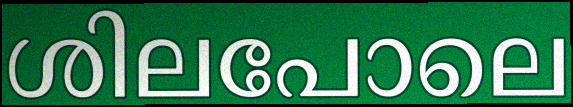
ശിലപോലെ